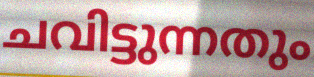
ചവിട്ടുന്നതും